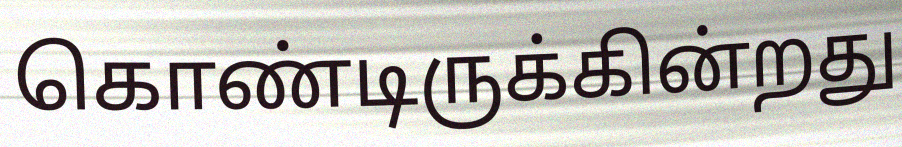
கொண்டிருக்கின்றது